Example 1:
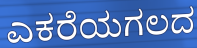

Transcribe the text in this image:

ಎಕರೆಯಗಲದ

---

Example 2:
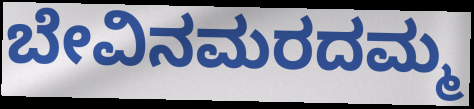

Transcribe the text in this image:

ಬೇವಿನಮರದಮ್ಮ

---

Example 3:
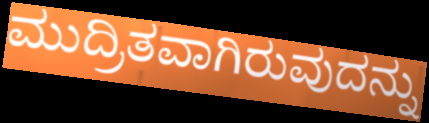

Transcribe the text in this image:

ಮುದ್ರಿತವಾಗಿರುವುದನ್ನು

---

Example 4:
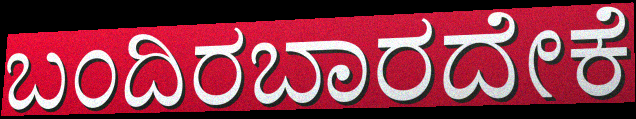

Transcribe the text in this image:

ಬಂದಿರಬಾರದೇಕೆ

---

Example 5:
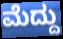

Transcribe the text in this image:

ಮೆದ್ದು